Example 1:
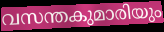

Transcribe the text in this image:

വസന്തകുമാരിയും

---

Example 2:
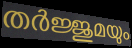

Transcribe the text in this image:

തർജ്ജുമയും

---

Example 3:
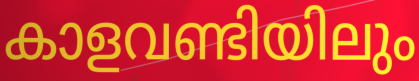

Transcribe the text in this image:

കാളവണ്ടിയിലും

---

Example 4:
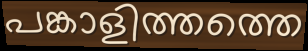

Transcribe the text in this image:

പങ്കാളിത്തത്തെ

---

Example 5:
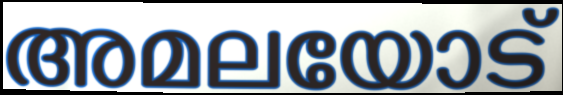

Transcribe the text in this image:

അമലയോട്